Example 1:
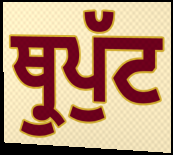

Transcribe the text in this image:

ਥ੍ਰੁਪੁੱਟ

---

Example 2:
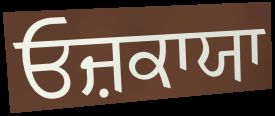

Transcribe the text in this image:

ਓਜ਼ਕਾਯਾ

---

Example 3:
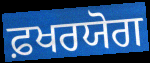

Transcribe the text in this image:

ਫ਼ਖਰਯੋਗ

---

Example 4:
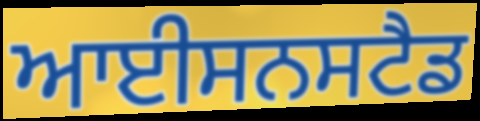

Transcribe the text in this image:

ਆਈਸਨਸਟੈਡ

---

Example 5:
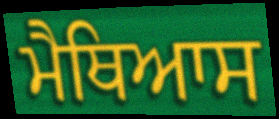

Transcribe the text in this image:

ਮੈਥਿਆਸ